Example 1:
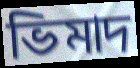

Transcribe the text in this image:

ভিমাদ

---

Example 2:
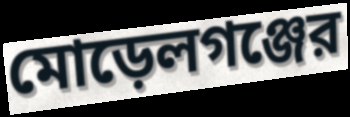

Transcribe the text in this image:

মোড়েলগঞ্জের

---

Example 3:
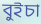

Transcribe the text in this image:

বুইচা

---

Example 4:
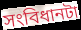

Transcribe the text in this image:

সংবিধানটা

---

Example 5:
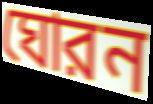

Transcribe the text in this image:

ঘোরন